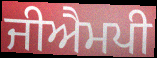
ਜੀਐਮਪੀ